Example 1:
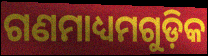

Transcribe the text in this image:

ଗଣମାଧ୍ୟମଗୁଡ଼ିକ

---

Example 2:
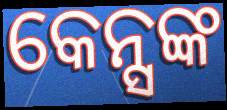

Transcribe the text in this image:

କେନ୍ସଙ୍କ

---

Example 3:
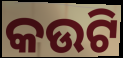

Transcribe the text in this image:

କଉଟି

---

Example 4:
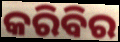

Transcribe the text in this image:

କରିବିର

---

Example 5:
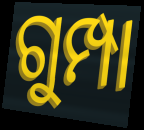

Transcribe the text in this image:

ଗୁମ୍ପା